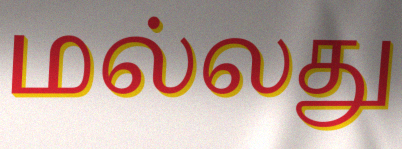
மல்லது